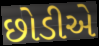
છોડીએ